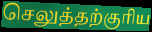
செலுத்தற்குரிய